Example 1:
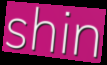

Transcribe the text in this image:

shin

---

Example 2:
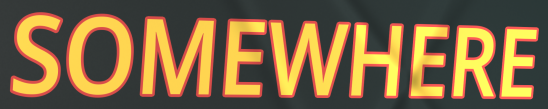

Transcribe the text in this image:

SOMEWHERE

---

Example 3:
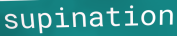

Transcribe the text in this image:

supination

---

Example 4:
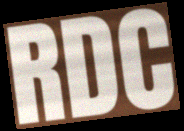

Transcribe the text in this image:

RDC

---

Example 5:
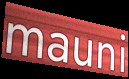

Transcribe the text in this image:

mauni